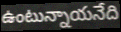
ఉంటున్నాయనేది